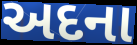
અદના